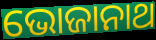
ଭୋଜାନାଥ